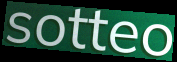
sotteo